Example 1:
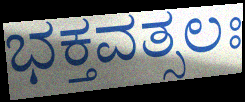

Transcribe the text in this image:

ಭಕ್ತವತ್ಸಲಃ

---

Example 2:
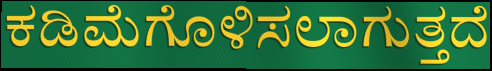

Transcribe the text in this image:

ಕಡಿಮೆಗೊಳಿಸಲಾಗುತ್ತದೆ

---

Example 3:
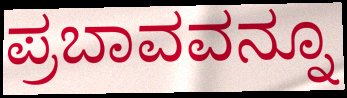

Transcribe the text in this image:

ಪ್ರಬಾವವನ್ನೂ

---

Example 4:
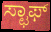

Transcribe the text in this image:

ಸ್ಟಾಫ್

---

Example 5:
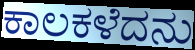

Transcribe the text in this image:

ಕಾಲಕಳೆದನು